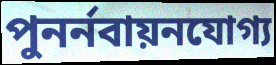
পুনর্নবায়নযোগ্য